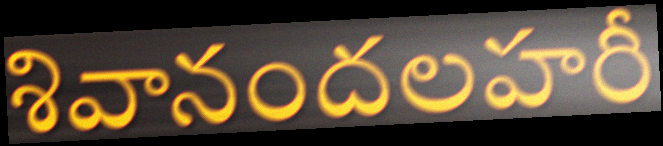
శివానందలహరీ